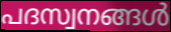
പദസ്വനങ്ങൾ